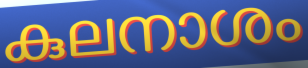
കുലനാശം